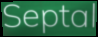
Septal